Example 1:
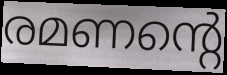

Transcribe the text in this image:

രമണന്റെ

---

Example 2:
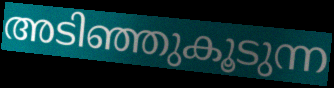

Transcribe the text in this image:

അടിഞ്ഞുകൂടുന്ന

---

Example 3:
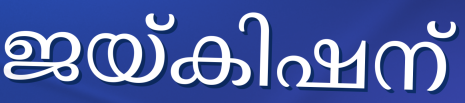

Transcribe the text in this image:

ജയ്കിഷന്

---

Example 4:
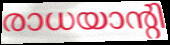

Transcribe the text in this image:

രാധയാന്റി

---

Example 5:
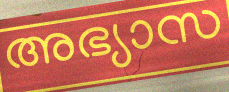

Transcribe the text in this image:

അഭ്യാസ